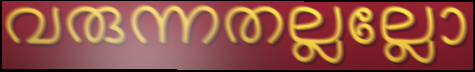
വരുന്നതല്ലല്ലോ